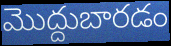
మొద్దుబారడం